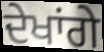
ਦੇਖਾਂਗੇ